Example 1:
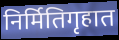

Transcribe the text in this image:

निर्मितिगृहात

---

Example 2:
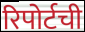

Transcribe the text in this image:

रिपोर्टची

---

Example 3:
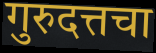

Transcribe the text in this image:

गुरुदत्तचा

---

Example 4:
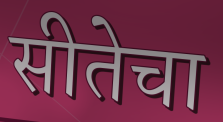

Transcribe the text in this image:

सीतेचा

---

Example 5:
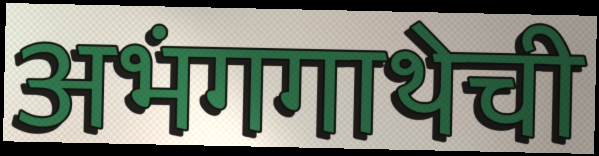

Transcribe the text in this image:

अभंगगाथेची